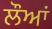
ਲੌਆਂ